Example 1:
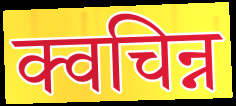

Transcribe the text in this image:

क्वचिन्न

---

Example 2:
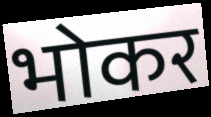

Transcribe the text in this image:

भोकर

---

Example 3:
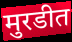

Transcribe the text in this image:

मुरडीत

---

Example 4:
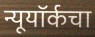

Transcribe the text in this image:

न्यूयॉर्कचा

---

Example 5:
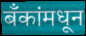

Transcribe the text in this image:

बॅंकांमधून